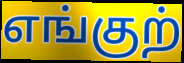
எங்குற்